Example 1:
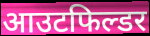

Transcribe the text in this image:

आउटफिल्डर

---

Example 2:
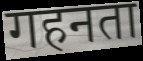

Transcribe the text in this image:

गहनता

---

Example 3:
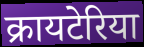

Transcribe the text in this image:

क्रायटेरिया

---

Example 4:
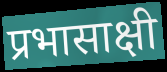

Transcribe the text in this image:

प्रभासाक्षी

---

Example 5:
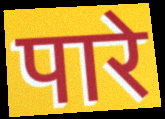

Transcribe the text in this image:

पारे